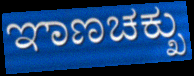
ಞಾಣಚಕ್ಖು